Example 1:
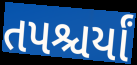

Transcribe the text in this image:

તપશ્ચર્યાં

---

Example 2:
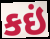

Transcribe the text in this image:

કઇં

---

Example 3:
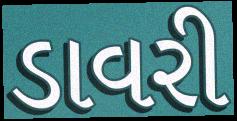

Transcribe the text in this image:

ડાવરી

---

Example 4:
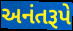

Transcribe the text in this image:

અનંતરૂપે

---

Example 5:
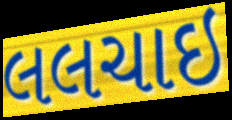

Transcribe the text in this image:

લલચાઇ